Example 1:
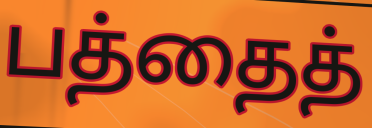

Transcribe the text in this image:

பத்தைத்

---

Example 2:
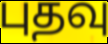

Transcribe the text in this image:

புதவு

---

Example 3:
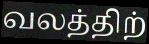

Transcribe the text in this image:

வலத்திற்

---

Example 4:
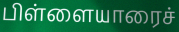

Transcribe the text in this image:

பிள்ளையாரைச்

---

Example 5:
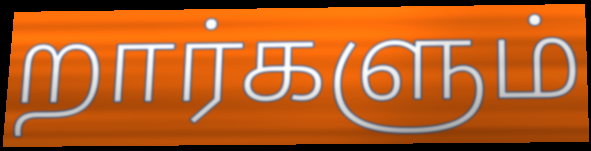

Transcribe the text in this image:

றார்களும்